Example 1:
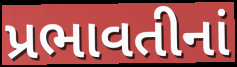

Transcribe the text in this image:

પ્રભાવતીનાં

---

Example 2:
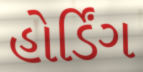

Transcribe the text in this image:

હોર્ડિંગ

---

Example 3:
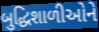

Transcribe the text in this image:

બુદ્ધિશાળીઓને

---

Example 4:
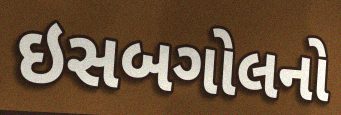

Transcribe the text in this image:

ઇસબગોલનો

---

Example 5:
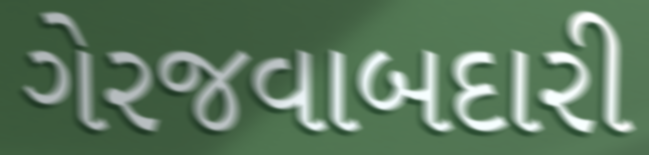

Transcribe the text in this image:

ગેરજવાબદારી